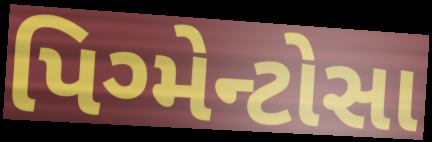
પિગ્મેન્ટોસા